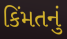
કિંમતનું